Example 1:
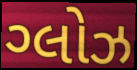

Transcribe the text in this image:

ગ્લોઝ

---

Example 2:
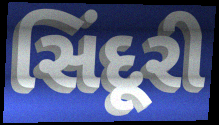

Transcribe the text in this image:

સિંદૂરી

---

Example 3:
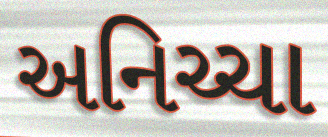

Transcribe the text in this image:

અનિચ્ચા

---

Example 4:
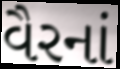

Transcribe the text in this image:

વૈરનાં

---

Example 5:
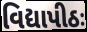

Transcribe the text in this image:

વિદ્યાપીઠઃ